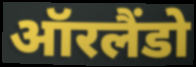
ऑरलैंडो